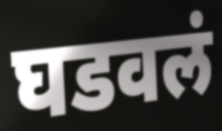
घडवलं